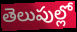
తెలుపుల్లో